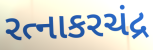
રત્નાકરચંદ્ર